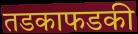
तडकाफडकी